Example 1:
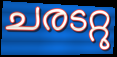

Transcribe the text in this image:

ചരടറ്റു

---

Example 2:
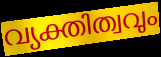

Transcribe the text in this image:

വ്യക്തിത്വവും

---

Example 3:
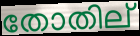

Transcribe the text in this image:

തോതില്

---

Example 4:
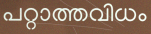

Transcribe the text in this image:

പറ്റാത്തവിധം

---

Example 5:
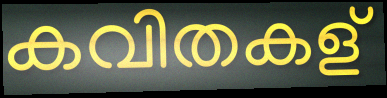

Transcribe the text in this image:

കവിതകള്